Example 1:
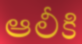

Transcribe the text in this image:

ఆలీకి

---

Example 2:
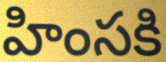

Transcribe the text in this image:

హింసకి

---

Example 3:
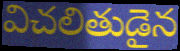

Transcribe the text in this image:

విచలితుడైన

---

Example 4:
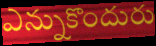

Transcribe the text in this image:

ఎన్నుకొందురు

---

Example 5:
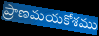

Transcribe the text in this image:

ప్రాణమయకోశము